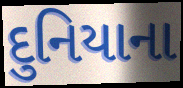
દુનિયાના